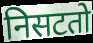
निसटतो